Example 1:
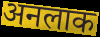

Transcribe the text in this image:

अनलाक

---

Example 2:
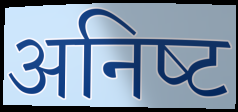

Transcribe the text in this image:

अनिष्‍ट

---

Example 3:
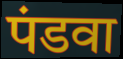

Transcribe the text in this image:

पंडवा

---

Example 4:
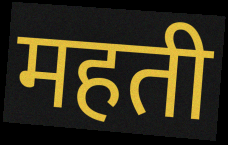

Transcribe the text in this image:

महती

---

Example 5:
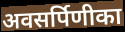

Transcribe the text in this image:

अवसर्पिणीका